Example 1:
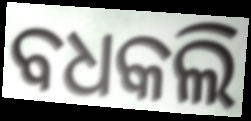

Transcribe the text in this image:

ବଧକଲି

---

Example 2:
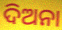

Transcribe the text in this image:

ଦିଅନା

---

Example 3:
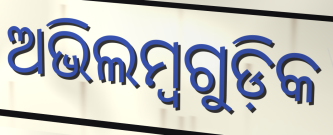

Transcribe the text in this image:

ଅଭିଲମ୍ବଗୁଡ଼ିକ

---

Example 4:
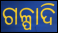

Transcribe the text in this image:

ଗଳ୍ପାଦି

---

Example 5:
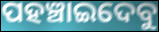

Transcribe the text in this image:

ପହଞ୍ଚାଇଦେବୁ